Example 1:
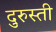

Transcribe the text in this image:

दुरुस्ती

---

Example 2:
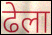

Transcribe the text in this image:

ढेला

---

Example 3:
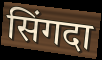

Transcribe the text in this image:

सिंगदा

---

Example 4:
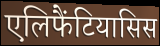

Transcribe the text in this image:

एलिफैंटियासिस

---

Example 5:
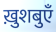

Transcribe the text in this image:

ख़ुशबुएँ